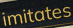
imitates